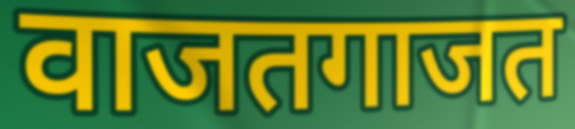
वाजतगाजत